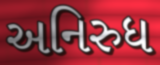
અનિરુધ